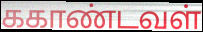
ககாண்டவள்